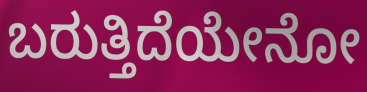
ಬರುತ್ತಿದೆಯೇನೋ